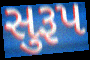
સુરૂપ